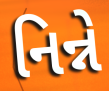
નિન્ને